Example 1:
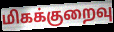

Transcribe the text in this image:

மிகக்குறைவு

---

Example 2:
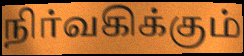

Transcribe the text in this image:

நிர்வகிக்கும்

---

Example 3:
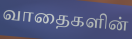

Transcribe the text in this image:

வாதைகளின்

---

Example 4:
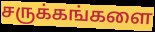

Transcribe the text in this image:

சருக்கங்களை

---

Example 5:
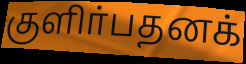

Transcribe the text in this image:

குளிர்பதனக்